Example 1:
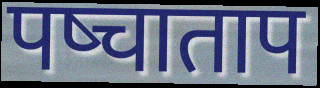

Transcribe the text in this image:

पष्चाताप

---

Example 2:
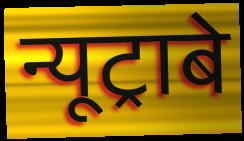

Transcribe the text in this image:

न्यूट्राबे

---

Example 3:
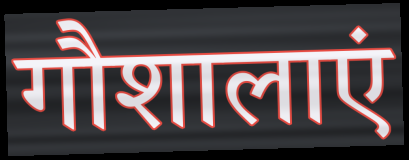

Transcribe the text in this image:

गौशालाएं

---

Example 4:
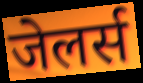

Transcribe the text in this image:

जेलर्स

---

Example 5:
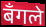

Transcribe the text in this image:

बँगले